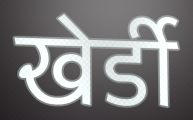
खेर्डी